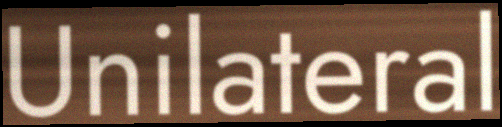
Unilateral